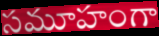
సమూహంగా